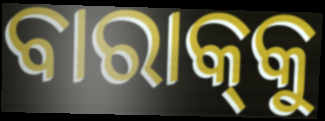
ବାରାକ୍‌କୁ